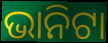
ଭାନିଟା